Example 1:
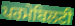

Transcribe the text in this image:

ਪਰਮੇਬਿਲਟੀ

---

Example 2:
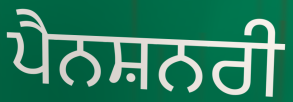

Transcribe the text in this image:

ਪੈਨਸ਼ਨਰੀ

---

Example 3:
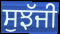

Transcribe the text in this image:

ਸੁਝੱਜੀ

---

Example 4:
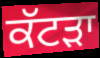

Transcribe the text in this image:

ਕੱਟੜਾ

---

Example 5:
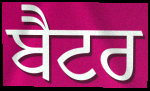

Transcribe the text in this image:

ਬੈਟਰ